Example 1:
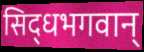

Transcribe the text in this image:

सिद्धभगवान्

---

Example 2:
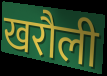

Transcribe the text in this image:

खरौली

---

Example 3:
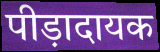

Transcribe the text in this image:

पीड़ादायक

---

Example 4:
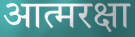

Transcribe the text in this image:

आत्मरक्षा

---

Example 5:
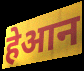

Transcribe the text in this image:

हेआन